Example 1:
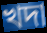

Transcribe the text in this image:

খদা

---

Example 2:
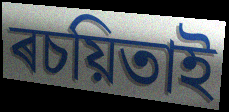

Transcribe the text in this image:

ৰচয়িতাই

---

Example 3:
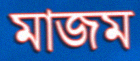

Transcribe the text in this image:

মাজম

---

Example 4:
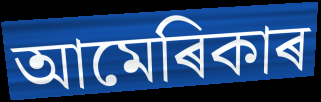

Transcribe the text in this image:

আমেৰিকাৰ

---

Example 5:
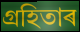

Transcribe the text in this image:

গ্ৰহিতাৰ